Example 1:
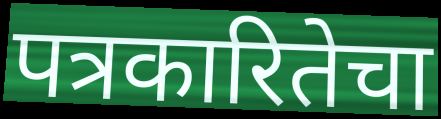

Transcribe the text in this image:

पत्रकारितेचा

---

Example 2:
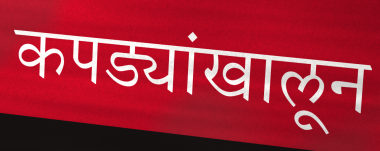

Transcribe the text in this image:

कपड्यांखालून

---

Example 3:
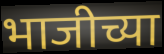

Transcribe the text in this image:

भाजीच्या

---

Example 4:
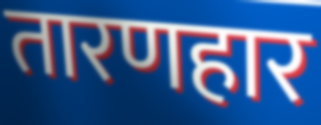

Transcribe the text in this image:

तारणहार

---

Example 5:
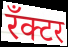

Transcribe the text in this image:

रँक्टर